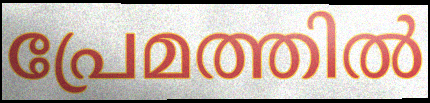
പ്രേമത്തിൽ